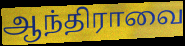
ஆந்திராவை